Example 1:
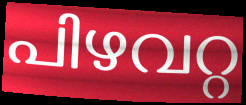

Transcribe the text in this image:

പിഴവറ്റ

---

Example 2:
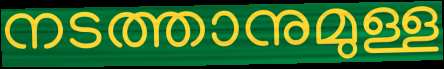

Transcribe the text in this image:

നടത്താനുമുള്ള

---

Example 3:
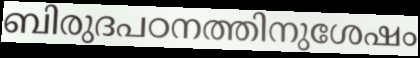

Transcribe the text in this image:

ബിരുദപഠനത്തിനുശേഷം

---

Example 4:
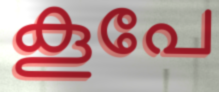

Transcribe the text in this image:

കൂപേ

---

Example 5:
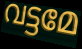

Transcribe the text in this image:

വട്ടമേ